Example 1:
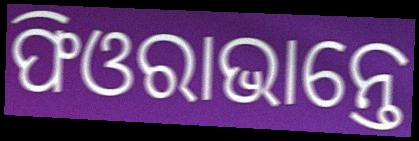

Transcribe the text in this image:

ଫିଓରାଭାନ୍ତେ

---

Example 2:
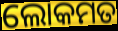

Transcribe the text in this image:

ଲୋକମତ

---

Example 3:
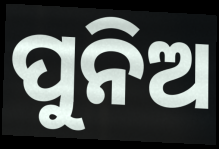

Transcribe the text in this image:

ପୁନିଅ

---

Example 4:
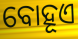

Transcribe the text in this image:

ବୋହୂଏ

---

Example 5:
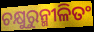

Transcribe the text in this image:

ଚକ୍ଷୁରୁନ୍ମୀଳିତଂ